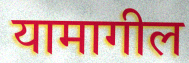
यामागील